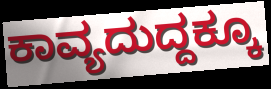
ಕಾವ್ಯದುದ್ದಕ್ಕೂ